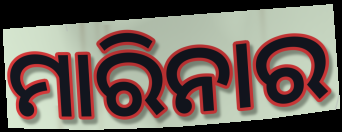
ମାରିନାର